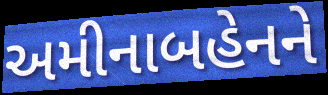
અમીનાબહેનને